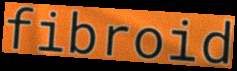
fibroid